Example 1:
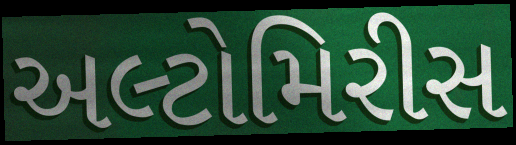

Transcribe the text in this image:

અલ્ટોમિરીસ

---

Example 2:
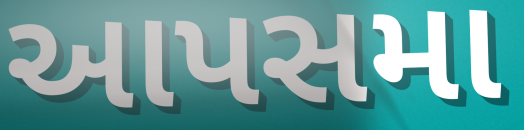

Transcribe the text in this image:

આપસમા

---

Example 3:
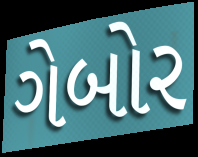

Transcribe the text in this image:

ગેબોર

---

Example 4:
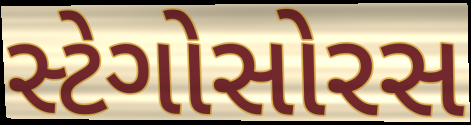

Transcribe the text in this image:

સ્ટેગોસોરસ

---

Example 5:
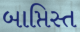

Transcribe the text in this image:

બાપ્તિસ્ત